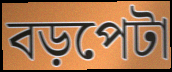
বড়পেটা